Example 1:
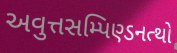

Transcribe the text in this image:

અવુત્તસમ્પિણ્ડનત્થો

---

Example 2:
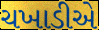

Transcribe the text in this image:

ચખાડીએ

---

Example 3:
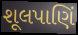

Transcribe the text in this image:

શૂલપાણિં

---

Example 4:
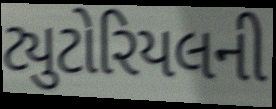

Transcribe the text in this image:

ટ્યુટોરિયલની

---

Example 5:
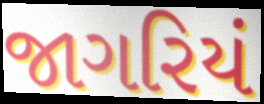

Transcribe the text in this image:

જાગરિયં